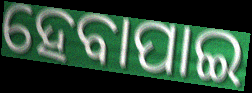
ହେବାପାଇ